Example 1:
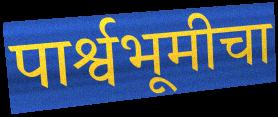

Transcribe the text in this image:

पार्श्वभूमीचा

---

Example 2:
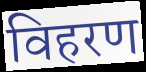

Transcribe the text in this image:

विहरण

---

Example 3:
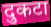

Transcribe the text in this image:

दुकटा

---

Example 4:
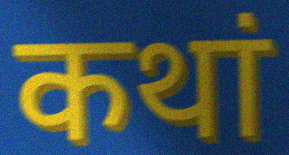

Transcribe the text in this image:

कथां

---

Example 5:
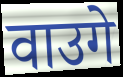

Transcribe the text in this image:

वाउगे